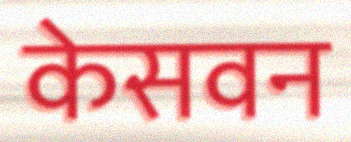
केसवन